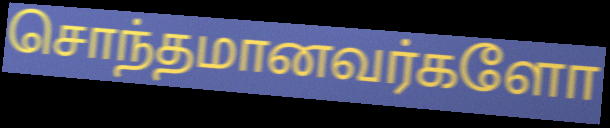
சொந்தமானவர்களோ